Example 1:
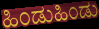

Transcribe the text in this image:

ಹಿಂಡುಹಿಂಡು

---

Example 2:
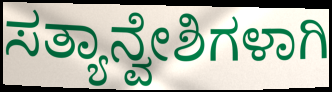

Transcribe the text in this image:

ಸತ್ಯಾನ್ವೇಶಿಗಳಾಗಿ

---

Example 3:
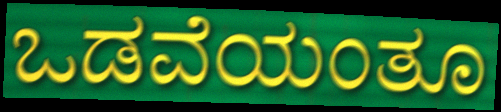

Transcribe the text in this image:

ಒಡವೆಯಂತೂ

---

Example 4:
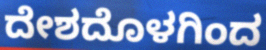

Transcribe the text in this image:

ದೇಶದೊಳಗಿಂದ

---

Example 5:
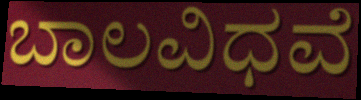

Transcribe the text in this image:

ಬಾಲವಿಧವೆ